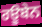
ਰਊਬੇਨ